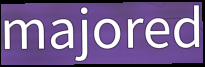
majored